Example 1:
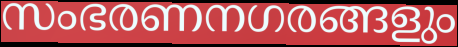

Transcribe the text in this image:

സംഭരണനഗരങ്ങളും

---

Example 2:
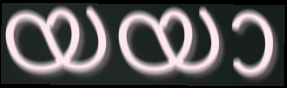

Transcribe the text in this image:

യയാ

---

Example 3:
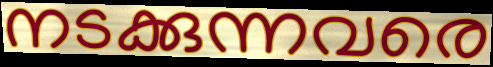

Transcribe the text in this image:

നടക്കുന്നവരെ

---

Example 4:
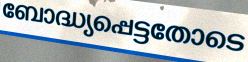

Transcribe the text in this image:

ബോദ്ധ്യപ്പെട്ടതോടെ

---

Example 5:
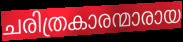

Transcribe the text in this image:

ചരിത്രകാരന്മാരായ